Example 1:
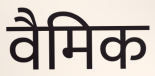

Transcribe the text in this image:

वैमिक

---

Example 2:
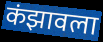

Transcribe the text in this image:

कंझावला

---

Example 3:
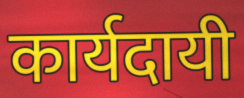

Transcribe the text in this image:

कार्यदायी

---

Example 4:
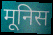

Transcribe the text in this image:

मूनिस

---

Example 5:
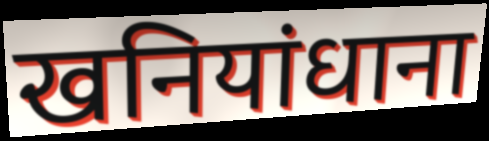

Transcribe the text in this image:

खनियांधाना